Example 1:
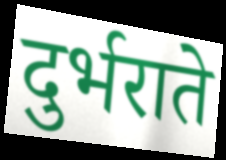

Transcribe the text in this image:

दुर्भराते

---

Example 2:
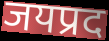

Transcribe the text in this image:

जयप्रद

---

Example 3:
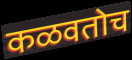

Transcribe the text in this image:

कळवतोच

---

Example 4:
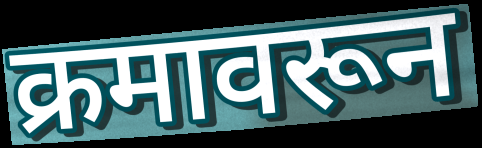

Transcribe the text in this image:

क्रमावरून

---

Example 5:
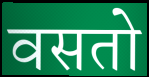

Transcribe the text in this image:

वसतो